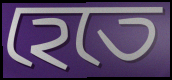
হেতে